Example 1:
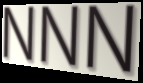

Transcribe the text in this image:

NNN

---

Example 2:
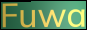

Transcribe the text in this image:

Fuwa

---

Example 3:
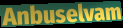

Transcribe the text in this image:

Anbuselvam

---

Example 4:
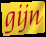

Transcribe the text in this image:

gijn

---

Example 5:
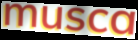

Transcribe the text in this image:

musca